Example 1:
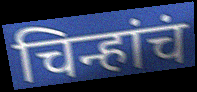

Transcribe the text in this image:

चिन्हांचं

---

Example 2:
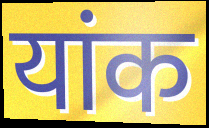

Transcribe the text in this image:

यांक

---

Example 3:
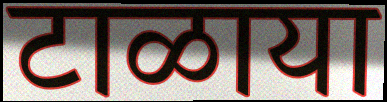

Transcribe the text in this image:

टाळाया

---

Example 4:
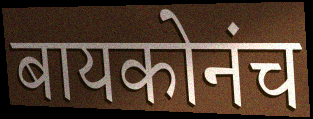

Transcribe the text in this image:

बायकोनंच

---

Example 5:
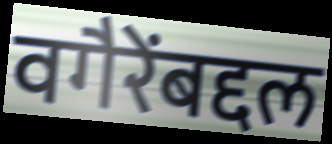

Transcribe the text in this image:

वगैरेंबद्दल